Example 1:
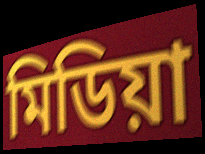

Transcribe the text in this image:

মিডিয়া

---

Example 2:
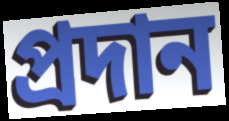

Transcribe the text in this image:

প্ৰদান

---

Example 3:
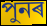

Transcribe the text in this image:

পুনৰ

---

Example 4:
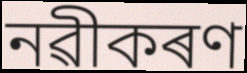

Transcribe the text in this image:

নৱীকৰণ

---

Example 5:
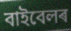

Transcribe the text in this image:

বাইবেলৰ